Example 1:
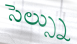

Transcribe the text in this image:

సెల్స్ను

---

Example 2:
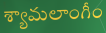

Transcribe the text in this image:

శ్యామలాంగీం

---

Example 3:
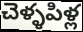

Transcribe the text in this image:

చెళ్ళపిళ్ల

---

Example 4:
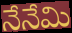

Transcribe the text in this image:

నేనేమి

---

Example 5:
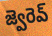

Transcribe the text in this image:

జ్వెరెవ్